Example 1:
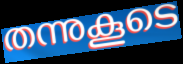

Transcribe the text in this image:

തന്നുകൂടെ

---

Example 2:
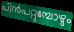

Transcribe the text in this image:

പിൻപറ്റുമ്പോഴും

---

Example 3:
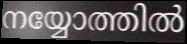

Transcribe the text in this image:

നയ്യോത്തിൽ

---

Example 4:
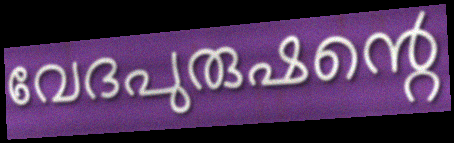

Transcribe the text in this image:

വേദപുരുഷന്റെ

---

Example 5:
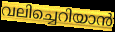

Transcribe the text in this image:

വലിച്ചെറിയാൻ